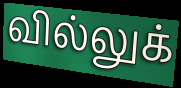
வில்லுக்